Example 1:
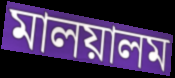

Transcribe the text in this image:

মালয়ালম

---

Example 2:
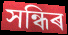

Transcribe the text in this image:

সন্ধিৰ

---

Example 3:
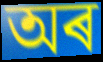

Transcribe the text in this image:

অৰ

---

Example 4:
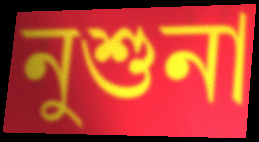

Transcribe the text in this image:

নুশুনা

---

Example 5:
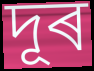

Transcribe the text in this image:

দূৰ